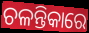
ଚଳନ୍ତିକାରେ